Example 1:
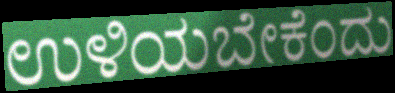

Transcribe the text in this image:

ಉಳಿಯಬೇಕೆಂದು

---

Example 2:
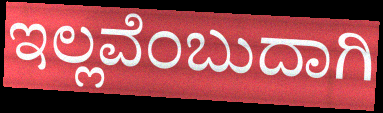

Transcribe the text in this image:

ಇಲ್ಲವೆಂಬುದಾಗಿ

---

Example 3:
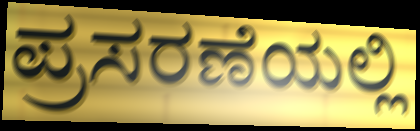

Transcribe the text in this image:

ಪ್ರಸರಣೆಯಲ್ಲಿ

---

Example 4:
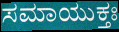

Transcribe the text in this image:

ಸಮಾಯುಕ್ತಃ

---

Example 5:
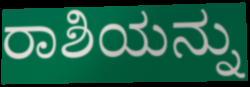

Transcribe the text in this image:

ರಾಶಿಯನ್ನು